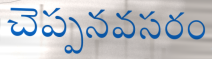
చెప్పనవసరం